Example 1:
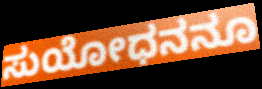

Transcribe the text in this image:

ಸುಯೋಧನನೂ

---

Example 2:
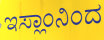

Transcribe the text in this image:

ಇಸ್ಲಾಂನಿಂದ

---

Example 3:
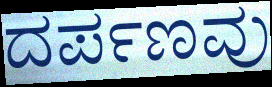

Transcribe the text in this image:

ದರ್ಪಣವು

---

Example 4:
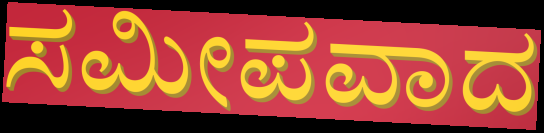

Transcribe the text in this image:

ಸಮೀಪವಾದ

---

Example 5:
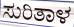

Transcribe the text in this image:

ಸುರಿತಾಳ